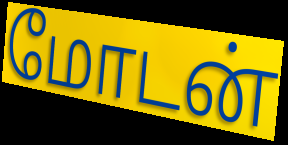
மோடன்